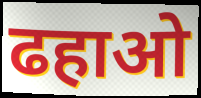
ढहाओ